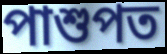
পাশুপত